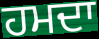
ਹਮਦਾ